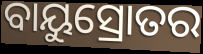
ବାୟୁସ୍ରୋତର